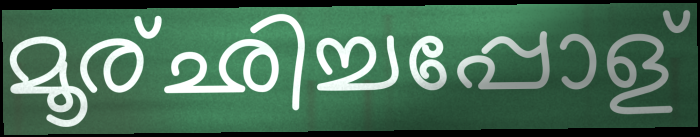
മൂര്ഛിച്ചപ്പോള്